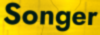
Songer